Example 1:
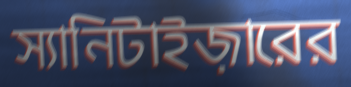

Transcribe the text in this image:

স্যানিটাইজ়ারের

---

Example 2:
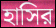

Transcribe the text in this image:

হাসির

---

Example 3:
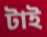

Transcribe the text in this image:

টাই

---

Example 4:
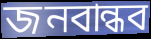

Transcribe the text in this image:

জনবান্ধব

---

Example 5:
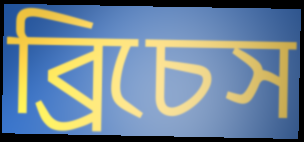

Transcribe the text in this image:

ব্রিচেস